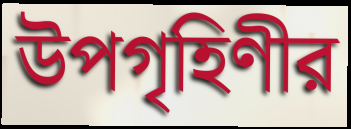
উপগৃহিণীর